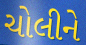
ચોલીને